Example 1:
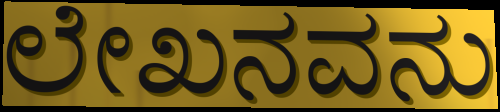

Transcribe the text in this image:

ಲೇಖನವನು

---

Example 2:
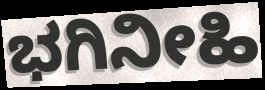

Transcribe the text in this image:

ಭಗಿನೀಹಿ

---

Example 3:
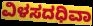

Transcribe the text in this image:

ವಿಳಸದಧಿವಾ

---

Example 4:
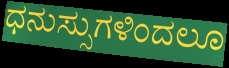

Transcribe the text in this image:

ಧನುಸ್ಸುಗಳಿಂದಲೂ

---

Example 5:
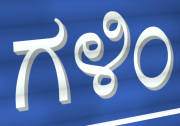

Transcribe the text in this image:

ಗಳಿಂ